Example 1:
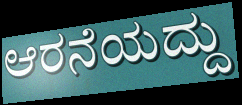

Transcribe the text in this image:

ಆರನೆಯದ್ದು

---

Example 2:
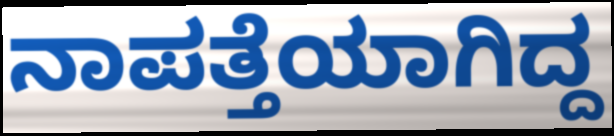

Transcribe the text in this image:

ನಾಪತ್ತೆಯಾಗಿದ್ದ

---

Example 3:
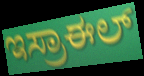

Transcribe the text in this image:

ಇಸ್ರಾಈಲ್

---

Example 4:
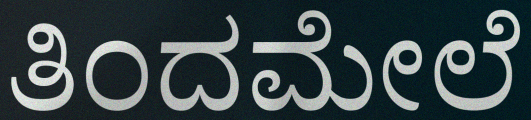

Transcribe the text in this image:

ತಿಂದಮೇಲೆ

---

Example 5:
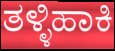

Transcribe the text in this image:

ತಳ್ಳಿಹಾಕಿ